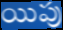
యిపు